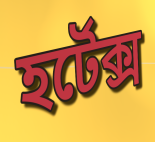
হর্টেক্স